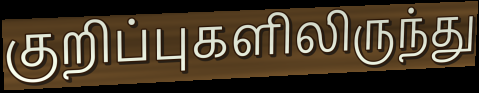
குறிப்புகளிலிருந்து